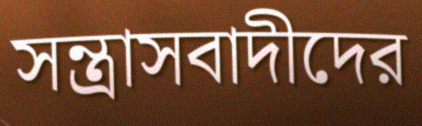
সন্ত্রাসবাদীদের